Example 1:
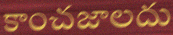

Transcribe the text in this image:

కాంచజాలదు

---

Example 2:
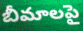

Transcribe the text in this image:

బీమాలపై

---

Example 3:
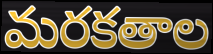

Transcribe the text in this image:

మరకతాల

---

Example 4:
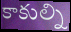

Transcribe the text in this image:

కాకుల్ని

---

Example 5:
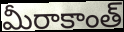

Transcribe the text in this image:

మీరాకాంత్